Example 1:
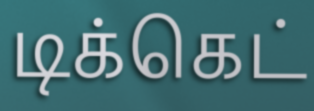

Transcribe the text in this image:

டிக்கெட்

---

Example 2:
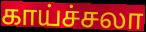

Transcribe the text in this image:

காய்ச்சலா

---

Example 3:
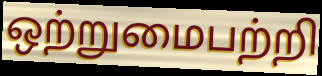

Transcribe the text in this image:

ஒற்றுமைபற்றி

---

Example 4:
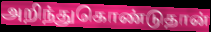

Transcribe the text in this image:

அறிந்துகொண்டுதான்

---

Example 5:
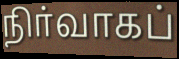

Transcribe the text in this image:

நிர்வாகப்